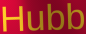
Hubb